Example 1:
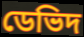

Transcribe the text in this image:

ডেভিদ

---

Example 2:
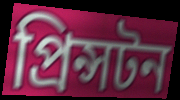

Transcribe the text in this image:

প্ৰিন্সটন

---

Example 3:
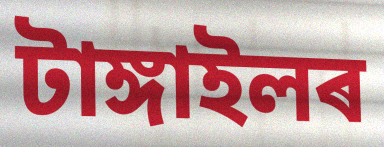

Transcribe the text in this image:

টাঙ্গাইলৰ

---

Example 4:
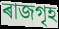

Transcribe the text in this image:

ৰাজগৃহ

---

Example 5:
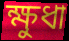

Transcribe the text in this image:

ক্ষুধা